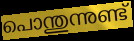
പൊന്തുന്നുണ്ട്